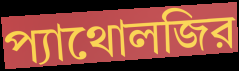
প্যাথোলজির